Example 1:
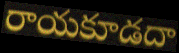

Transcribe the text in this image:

రాయకూడదా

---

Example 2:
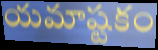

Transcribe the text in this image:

యమాష్టకం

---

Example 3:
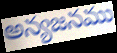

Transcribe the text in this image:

అన్యజనము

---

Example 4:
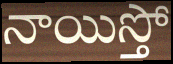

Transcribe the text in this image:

నాయిస్తో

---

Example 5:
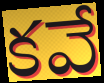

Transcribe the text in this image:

కవే